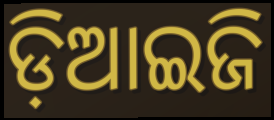
ଡ଼ିଆଇଜି